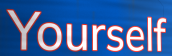
Yourself